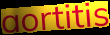
aortitis